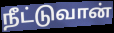
நீட்டுவான்